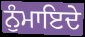
ਨੁੰਮਾਇਦੇ